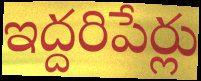
ఇద్దరిపేర్లు